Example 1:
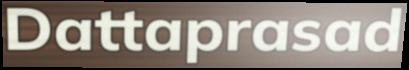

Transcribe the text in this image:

Dattaprasad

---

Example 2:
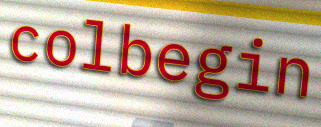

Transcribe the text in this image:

colbegin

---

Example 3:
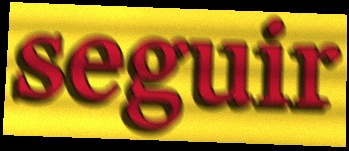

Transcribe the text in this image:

seguir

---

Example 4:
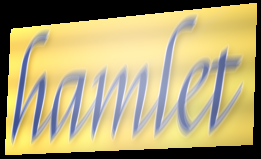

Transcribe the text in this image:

hamlet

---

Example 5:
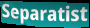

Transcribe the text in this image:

Separatist